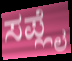
ಸಪ್ಲೈ